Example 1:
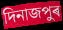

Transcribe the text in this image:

দিনাজপুৰ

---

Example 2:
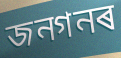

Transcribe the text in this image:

জনগনৰ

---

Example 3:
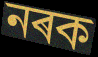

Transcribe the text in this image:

নৰক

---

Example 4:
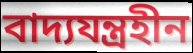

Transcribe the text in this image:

বাদ্যযন্ত্ৰহীন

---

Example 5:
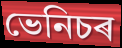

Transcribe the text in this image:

ভেনিচৰ